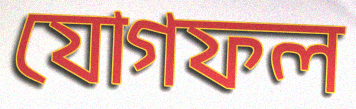
যোগফল